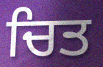
ਚਿਤ